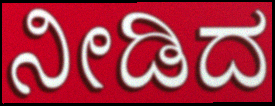
ನೀಡಿದ